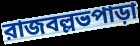
রাজবল্লভপাড়া